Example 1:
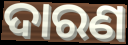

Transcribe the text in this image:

ଦାରଣ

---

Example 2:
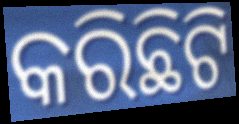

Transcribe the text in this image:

କରିଛିଟି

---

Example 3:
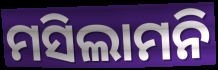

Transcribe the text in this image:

ମସିଲାମନି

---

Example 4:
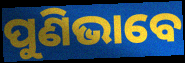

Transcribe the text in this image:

ପୁଣିଭାବେ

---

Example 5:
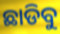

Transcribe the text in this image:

ଛାଡିବୁ